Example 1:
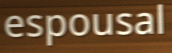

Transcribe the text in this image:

espousal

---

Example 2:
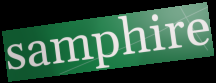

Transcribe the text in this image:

samphire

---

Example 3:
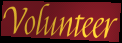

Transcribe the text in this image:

Volunteer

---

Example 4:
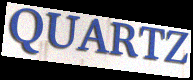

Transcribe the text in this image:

QUARTZ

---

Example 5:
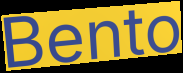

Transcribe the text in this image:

Bento